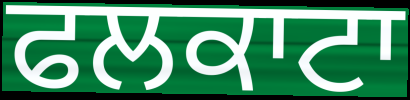
ਫਲਕਾਟਾ